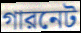
গারনেট